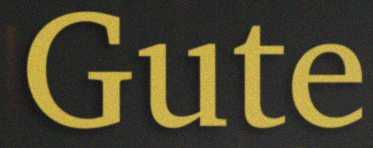
Gute